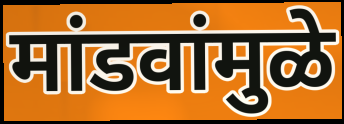
मांडवांमुळे